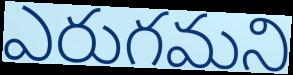
ఎరుగమని